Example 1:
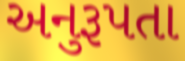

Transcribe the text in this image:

અનુરૂપતા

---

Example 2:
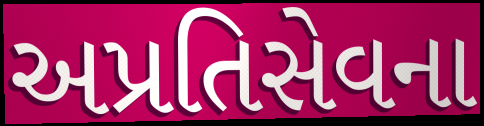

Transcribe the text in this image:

અપ્રતિસેવના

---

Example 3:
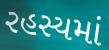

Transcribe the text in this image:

રહસ્યમાં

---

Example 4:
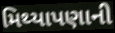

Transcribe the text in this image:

મિથ્યાપણાની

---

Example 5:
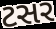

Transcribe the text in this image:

ટસર